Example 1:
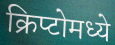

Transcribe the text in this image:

क्रिप्टोमध्ये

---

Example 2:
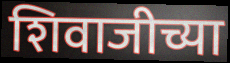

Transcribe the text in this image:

शिवाजीच्या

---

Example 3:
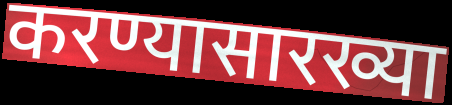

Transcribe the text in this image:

करण्यासारख्या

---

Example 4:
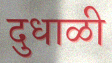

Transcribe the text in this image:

दुधाळी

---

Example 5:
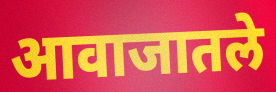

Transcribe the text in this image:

आवाजातले